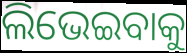
ଲିଭେଇବାକୁ